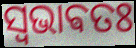
ସ୍ଵଭାଵତଃ